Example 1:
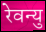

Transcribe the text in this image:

रेवन्यु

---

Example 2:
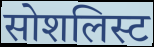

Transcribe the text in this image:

सोशलिस्‍ट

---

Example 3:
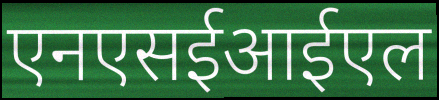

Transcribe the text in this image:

एनएसईआईएल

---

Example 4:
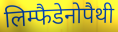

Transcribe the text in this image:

लिम्फैडेनोपैथी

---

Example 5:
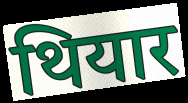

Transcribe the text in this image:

थियार